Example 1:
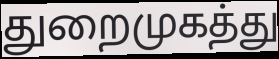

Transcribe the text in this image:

துறைமுகத்து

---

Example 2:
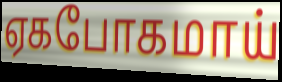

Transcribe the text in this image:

ஏகபோகமாய்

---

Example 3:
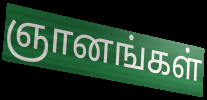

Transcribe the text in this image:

ஞானங்கள்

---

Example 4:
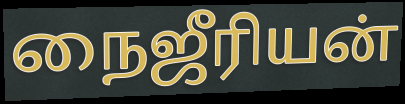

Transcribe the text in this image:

நைஜீரியன்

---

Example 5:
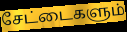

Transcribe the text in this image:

சேட்டைகளும்